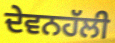
ਦੇਵਨਹੱਲੀ